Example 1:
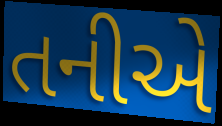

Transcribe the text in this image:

તનીએ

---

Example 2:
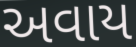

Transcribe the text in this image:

અવાય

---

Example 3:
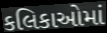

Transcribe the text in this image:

કલિકાઓમાં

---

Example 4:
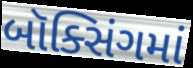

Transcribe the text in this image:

બૉક્સિંગમાં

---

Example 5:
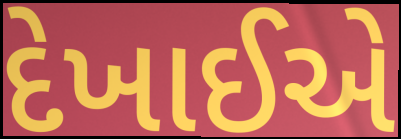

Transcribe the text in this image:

દેખાઈએ